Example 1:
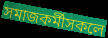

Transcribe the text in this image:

সমাজকৰ্মীসকলে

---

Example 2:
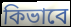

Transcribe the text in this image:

কিভাবে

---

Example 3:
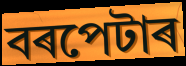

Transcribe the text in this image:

বৰপেটাৰ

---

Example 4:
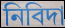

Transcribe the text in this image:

নিবিদা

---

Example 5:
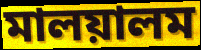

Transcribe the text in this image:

মালয়ালম